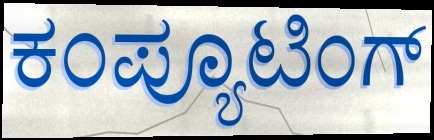
ಕಂಪ್ಯೂಟಿಂಗ್